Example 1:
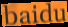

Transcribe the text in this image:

baidu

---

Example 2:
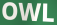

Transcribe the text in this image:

OWL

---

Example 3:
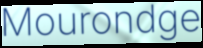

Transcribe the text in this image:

Mourondge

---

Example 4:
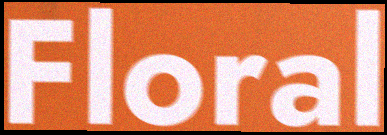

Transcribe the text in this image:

Floral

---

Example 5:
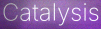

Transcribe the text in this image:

Catalysis